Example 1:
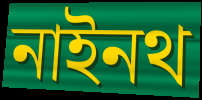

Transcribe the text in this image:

নাইনথ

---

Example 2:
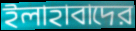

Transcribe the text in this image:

ইলাহাবাদের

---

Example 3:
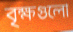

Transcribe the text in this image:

বৃক্ষগুলো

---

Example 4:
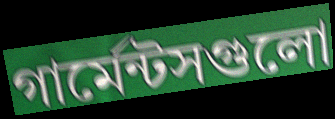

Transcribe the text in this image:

গার্মেন্টসগুলো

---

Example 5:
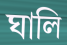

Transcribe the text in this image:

ঘালি